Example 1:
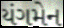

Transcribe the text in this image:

યંગમેન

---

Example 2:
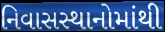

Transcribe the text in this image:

નિવાસસ્થાનોમાંથી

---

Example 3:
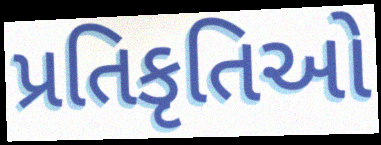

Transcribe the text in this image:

પ્રતિકૃતિઓ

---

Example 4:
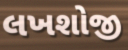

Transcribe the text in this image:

લખશોજી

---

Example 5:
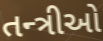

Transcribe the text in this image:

તન્ત્રીઓ